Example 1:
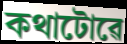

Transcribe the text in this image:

কথাটোৱে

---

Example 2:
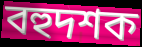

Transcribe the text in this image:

বহুদশক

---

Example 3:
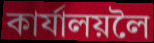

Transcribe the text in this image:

কাৰ্যালয়লৈ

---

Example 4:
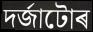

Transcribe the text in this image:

দৰ্জাটোৰ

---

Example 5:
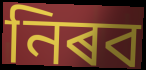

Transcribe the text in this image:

নিৰব